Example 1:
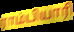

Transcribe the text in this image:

ராம்பியாரி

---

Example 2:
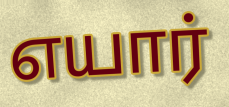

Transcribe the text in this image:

எயார்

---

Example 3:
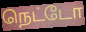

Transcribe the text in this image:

நெட்டோ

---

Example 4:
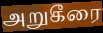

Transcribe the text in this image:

அறுகீரை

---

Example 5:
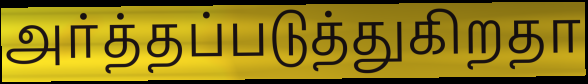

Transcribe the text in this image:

அர்த்தப்படுத்துகிறதா